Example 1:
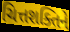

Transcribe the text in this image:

ચિત્તશક્તિને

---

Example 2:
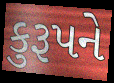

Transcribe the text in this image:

કુરૂપને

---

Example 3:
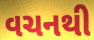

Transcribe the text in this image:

વચનથી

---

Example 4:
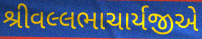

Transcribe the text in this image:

શ્રીવલ્લભાચાર્યજીએ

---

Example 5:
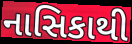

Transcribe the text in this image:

નાસિકાથી